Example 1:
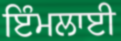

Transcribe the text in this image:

ਇੰਮਲਾਈ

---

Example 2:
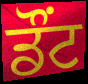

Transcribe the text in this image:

ਡੌਂਟ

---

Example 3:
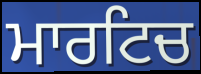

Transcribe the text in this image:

ਮਾਰਟਿਚ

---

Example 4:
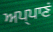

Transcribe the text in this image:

ਅਪ੍ਪਾਣਂ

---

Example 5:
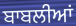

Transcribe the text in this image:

ਬਾਬਲੀਆਂ